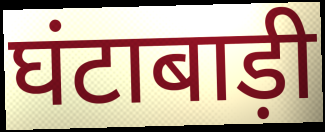
घंटाबाड़ी